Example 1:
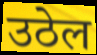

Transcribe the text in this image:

उठेल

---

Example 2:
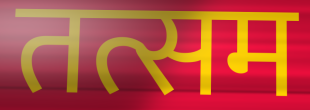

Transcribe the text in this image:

तत्सम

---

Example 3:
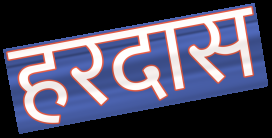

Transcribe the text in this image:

हरदास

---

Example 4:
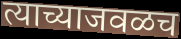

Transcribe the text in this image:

त्याच्याजवळच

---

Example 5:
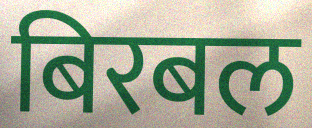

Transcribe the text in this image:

बिरबल